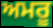
ਅਮਰੂ